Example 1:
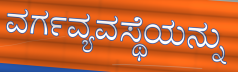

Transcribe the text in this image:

ವರ್ಗವ್ಯವಸ್ಥೆಯನ್ನು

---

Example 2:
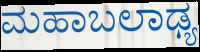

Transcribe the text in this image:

ಮಹಾಬಲಾಢ್ಯ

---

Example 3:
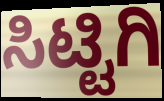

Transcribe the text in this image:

ಸಿಟ್ಟಿಗಿ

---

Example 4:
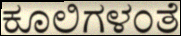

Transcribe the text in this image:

ಕೂಲಿಗಳಂತೆ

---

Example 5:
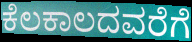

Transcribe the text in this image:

ಕೆಲಕಾಲದವರೆಗೆ